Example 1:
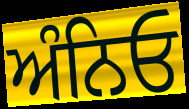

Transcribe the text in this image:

ਅੰਨਿਓ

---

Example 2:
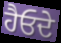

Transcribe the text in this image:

ਹੈਓਦੇ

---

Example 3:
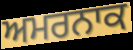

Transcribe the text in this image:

ਅਮਰਨਾਕ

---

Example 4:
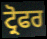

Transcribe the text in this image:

ਟ੍ਰੋਫਰ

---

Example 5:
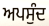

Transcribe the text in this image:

ਅਪਸੁੰਦ